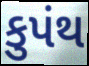
કુપંથ